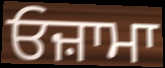
ਓਜ਼ਾਮਾ